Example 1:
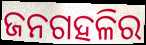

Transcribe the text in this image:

ଜନଗହଳିର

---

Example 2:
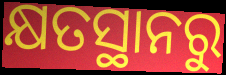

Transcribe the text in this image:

କ୍ଷତସ୍ଥାନରୁ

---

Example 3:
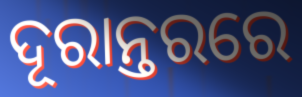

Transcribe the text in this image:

ଦୂରାନ୍ତରରେ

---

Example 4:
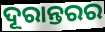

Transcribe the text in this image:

ଦୂରାନ୍ତରର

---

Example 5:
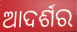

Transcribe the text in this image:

ଆଦର୍ଶର